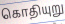
கொதியுறு